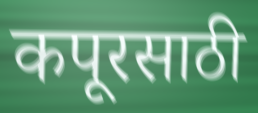
कपूरसाठी